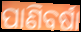
ପାଣିବର୍ଷା